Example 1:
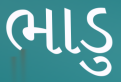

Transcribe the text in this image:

ભાડુ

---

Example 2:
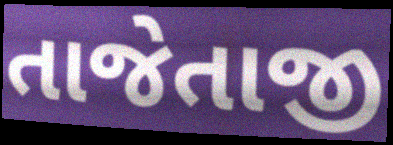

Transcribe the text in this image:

તાજેતાજી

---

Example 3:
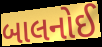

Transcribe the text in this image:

બાલનોઈ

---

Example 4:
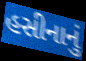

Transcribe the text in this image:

હસીનાનું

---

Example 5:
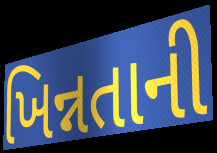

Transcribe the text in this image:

ખિન્નતાની